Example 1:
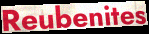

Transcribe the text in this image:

Reubenites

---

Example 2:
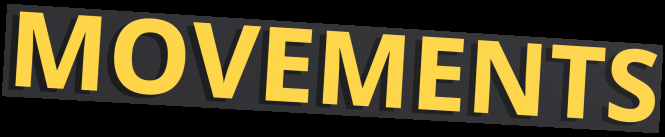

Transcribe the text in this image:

MOVEMENTS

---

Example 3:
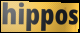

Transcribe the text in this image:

hippos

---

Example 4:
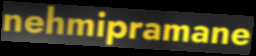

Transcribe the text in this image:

nehmipramane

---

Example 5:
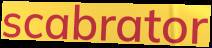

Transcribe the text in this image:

scabrator